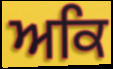
ਅਕਿ